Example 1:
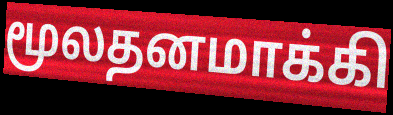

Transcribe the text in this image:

மூலதனமாக்கி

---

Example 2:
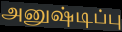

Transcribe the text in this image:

அனுஷ்டிப்பு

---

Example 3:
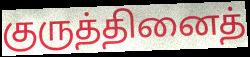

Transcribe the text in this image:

குருத்தினைத்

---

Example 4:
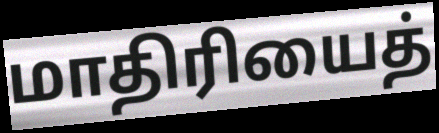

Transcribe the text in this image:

மாதிரியைத்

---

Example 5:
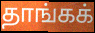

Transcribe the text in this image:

தாங்கக்